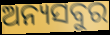
ଅନ୍ୟସବୁର